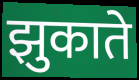
झुकाते